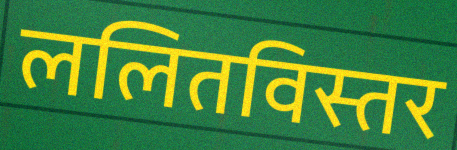
ललितविस्तर